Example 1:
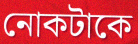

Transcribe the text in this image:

নোকটাকে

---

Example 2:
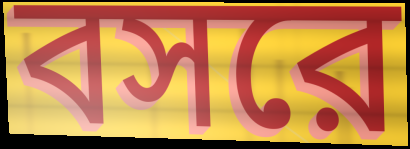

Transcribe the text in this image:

বসরে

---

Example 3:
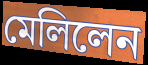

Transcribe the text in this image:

মেলিলেন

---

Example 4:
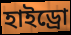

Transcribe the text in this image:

হাইড্রো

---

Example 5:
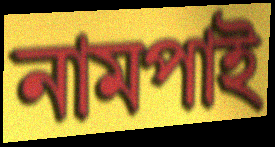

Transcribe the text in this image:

নামপাই